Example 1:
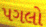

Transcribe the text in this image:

પગલો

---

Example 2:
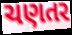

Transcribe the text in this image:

ચણતર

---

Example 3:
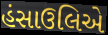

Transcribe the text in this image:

હંસાઉલિએ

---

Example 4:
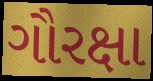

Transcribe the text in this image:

ગૌરક્ષા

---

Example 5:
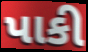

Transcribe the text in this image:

પાકી